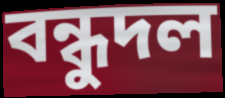
বন্ধুদল